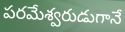
పరమేశ్వరుడుగానే